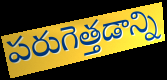
పరుగెత్తడాన్ని